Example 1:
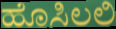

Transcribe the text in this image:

ಹೊಸಿಲಲಿ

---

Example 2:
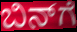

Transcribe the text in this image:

ಬಿನ್‌ಗೆ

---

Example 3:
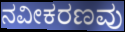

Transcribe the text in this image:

ನವೀಕರಣವು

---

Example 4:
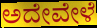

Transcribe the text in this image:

ಅದೇವೇಳೆ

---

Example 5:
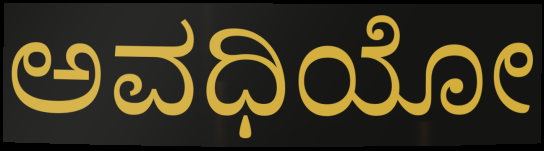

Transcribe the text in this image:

ಅವಧಿಯೋ